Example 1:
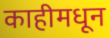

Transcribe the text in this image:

काहीमधून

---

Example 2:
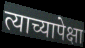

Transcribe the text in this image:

त्याच्यापेक्षा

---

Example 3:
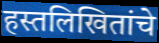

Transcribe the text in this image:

हस्तलिखितांचे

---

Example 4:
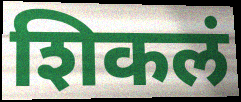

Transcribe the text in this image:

शिकलं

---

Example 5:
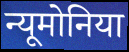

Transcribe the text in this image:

न्यूमोनिया